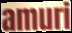
amuri